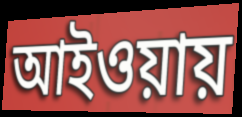
আইওয়ায়